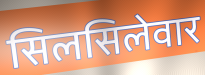
सिलसिलेवार